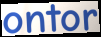
ontor